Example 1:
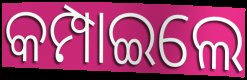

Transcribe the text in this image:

କମ୍ପାଇଲେ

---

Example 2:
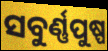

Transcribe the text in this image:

ସବୁର୍ଣ୍ଣପୁଷ୍ପ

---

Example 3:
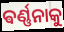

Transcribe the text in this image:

ଵର୍ଣ୍ଣନାକୁ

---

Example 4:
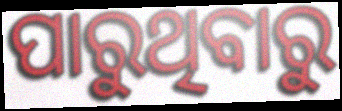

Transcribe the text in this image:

ପାରୁଥିବାରୁ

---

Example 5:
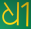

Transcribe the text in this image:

ଧୀ